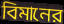
বিমানের